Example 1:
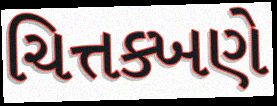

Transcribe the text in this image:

ચિત્તક્ખણે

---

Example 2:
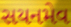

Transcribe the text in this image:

સયનમેવ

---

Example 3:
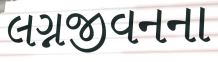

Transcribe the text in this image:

લગ્નજીવનના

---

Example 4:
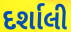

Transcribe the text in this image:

દર્શાલી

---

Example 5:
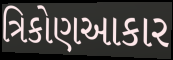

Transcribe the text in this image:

ત્રિકોણઆકાર